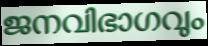
ജനവിഭാഗവും